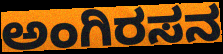
ಅಂಗಿರಸನ